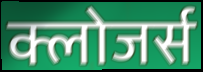
क्लोजर्स